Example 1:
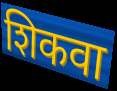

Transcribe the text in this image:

शिकवा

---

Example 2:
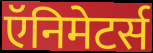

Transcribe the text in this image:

ऍनिमेटर्स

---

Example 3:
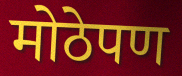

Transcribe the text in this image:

मोठेपण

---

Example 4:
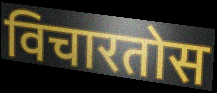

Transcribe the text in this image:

विचारतोस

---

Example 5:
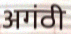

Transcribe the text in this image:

अगंठी